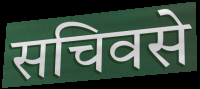
सचिवसे